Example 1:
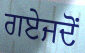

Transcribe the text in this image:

ਗਏਜਦੋਂ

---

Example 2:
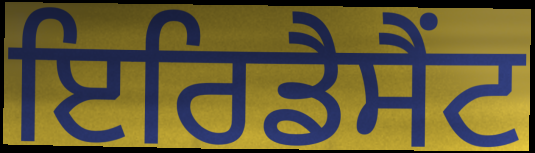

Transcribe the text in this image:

ਇਰਿਡੈਸੈਂਟ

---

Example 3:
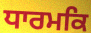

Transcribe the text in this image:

ਧਾਰਮਕਿ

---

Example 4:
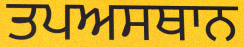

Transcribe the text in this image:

ਤਪਅਸਥਾਨ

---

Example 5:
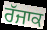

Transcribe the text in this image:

ਰੱਜਾਕ